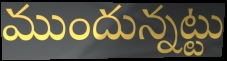
ముందున్నట్టు